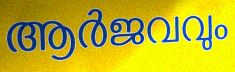
ആർജവവും